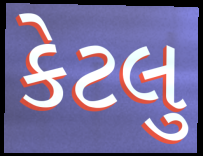
કેટલુ